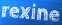
rexine